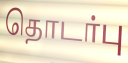
தொடர்பு